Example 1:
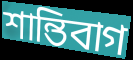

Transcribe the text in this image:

শান্তিবাগ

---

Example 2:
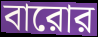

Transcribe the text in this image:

বারোর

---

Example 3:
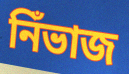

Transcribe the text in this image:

নিঁভাজ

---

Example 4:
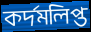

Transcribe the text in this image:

কর্দমলিপ্ত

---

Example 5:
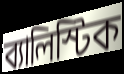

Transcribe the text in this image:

ব্যালিস্টিক